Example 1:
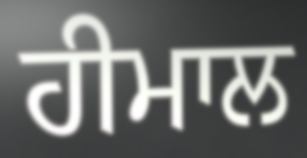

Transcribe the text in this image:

ਹੀਮਾਲ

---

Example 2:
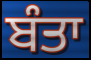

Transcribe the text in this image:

ਬੰਤਾ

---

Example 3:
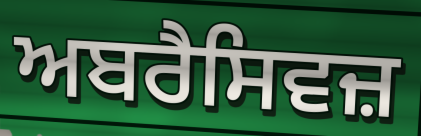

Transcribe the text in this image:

ਅਬਰੈਸਿਵਜ਼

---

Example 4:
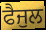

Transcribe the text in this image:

ਫੈਜੁਲ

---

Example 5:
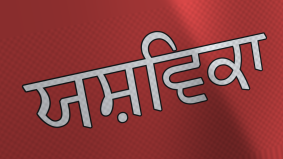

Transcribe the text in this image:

ਯਸ਼ਵਿਕਾ